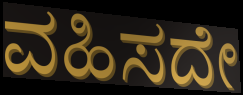
ವಹಿಸದೇ